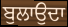
ਬੁਲਾਉਦਾ